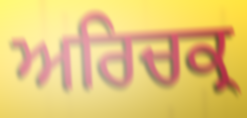
ਅਰਿਚਕ੍ਰ